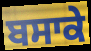
ਬਸਾਕੇ